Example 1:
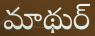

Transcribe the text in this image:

మాథుర్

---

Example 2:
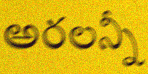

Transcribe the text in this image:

అరలన్నీ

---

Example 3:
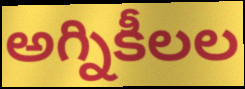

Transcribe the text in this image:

అగ్నికీలల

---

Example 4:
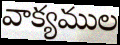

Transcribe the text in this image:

వాక్యముల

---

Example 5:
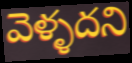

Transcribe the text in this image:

వెళ్ళదని